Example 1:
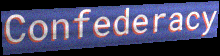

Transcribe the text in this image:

Confederacy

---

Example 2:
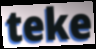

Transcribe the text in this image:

teke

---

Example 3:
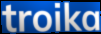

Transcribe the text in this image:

troika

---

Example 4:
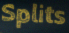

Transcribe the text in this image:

Splits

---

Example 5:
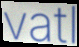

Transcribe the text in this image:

vatl